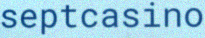
septcasino